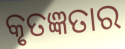
କୃତଜ୍ଞତାର